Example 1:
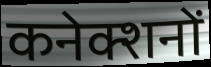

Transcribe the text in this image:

कनेक्शनों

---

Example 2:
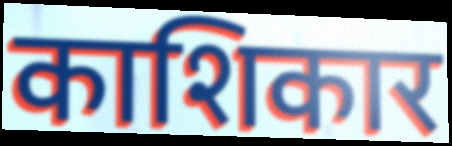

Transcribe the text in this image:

काशिकार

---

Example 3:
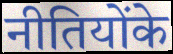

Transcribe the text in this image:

नीतियोंके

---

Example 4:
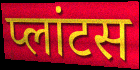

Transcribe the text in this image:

प्लांटस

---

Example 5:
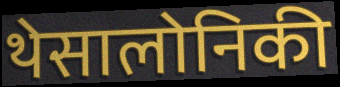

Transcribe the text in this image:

थेसालोनिकी